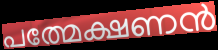
പത്മേക്ഷണൻ